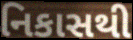
નિકાસથી